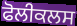
ਫੋਲੀਕਲਸ